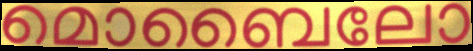
മൊബൈലോ